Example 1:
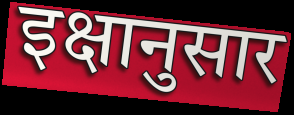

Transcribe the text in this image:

इक्षानुसार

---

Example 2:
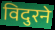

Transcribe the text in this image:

विदुरने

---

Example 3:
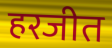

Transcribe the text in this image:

हरजीत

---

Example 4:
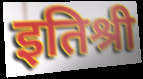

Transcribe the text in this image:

इतिश्री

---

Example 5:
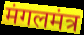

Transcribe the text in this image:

मंगलमंत्र